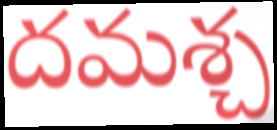
దమశ్చ